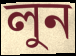
লুন